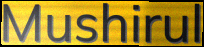
Mushirul